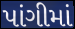
પાંગીમાં